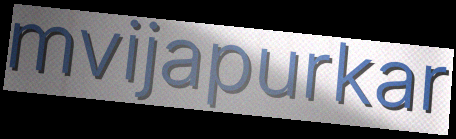
mvijapurkar